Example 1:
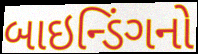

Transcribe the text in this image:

બાઇન્ડિંગનો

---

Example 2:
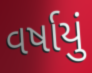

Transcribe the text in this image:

વર્ષાયું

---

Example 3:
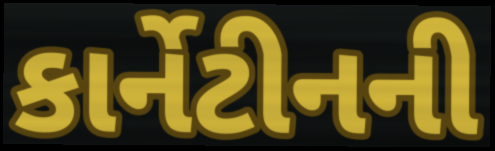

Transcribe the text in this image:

કાર્નેટીનની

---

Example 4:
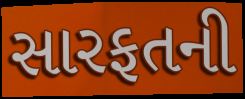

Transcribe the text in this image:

સારફતની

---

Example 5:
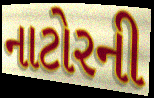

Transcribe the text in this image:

નાટોરની